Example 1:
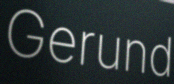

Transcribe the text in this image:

Gerund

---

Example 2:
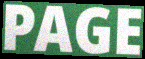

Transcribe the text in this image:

PAGE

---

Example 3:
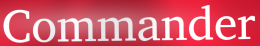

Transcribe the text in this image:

Commander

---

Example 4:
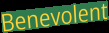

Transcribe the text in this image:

Benevolent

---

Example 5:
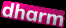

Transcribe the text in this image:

dharm